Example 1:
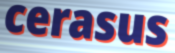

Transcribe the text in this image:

cerasus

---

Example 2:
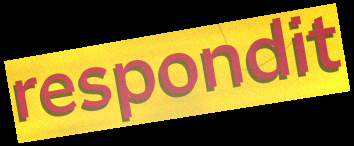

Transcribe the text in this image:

respondit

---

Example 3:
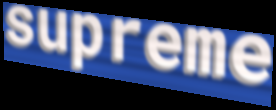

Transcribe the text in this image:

supreme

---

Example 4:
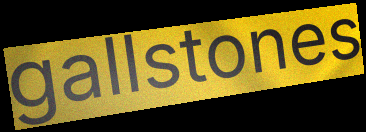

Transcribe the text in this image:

gallstones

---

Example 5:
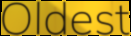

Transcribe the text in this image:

Oldest